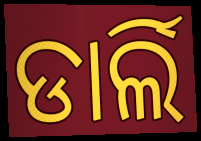
ଡାର୍ଲି